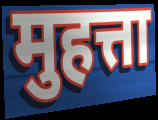
मुहत्ता